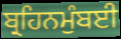
ਬ੍ਰਹਿਨਮੁੰਬਈ